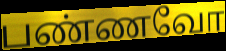
பண்ணவோ